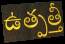
ఉత్పత్తీ